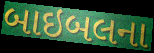
બાઇબલના